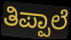
ತಿಪ್ಪಾಲೆ